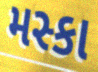
મસ્કા